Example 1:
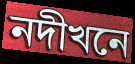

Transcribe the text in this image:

নদীখনে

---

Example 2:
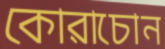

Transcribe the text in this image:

কোৱাচোন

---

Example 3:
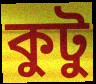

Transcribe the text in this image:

কুটু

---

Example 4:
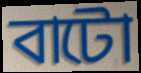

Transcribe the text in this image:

বাটো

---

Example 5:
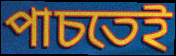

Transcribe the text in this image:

পাচতেই